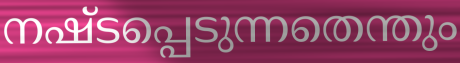
നഷ്ടപ്പെടുന്നതെന്തും